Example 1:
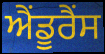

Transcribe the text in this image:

ਐਂਡੂਰੈਂਸ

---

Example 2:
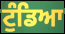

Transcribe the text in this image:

ਟੁੰਡਿਆ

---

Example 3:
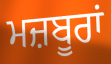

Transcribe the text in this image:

ਮਜ਼ਬੂਰਾਂ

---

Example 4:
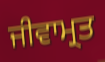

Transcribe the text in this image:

ਜੀਵਾਮ੍ਰਤ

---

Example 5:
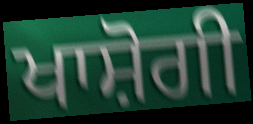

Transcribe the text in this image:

ਖਾਸ਼ੋਗੀ